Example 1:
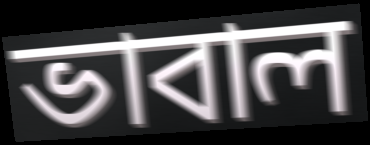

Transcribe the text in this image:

ভাবাল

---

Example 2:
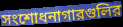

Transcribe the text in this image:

সংশোধনাগারগুলির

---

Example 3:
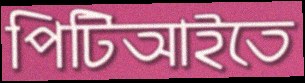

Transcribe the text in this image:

পিটিআইতে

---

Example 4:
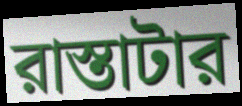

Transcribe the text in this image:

রাস্তাটার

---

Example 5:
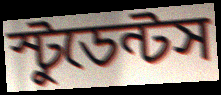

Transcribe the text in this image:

স্টুডেন্টস